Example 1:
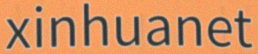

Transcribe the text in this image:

xinhuanet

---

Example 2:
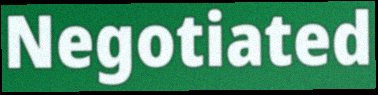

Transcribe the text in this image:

Negotiated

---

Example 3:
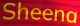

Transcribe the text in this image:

Sheena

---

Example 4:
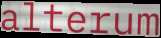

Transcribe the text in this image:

alterum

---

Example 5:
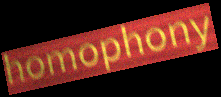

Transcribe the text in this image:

homophony